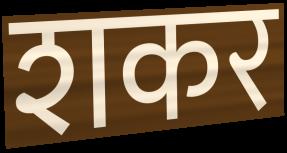
शकर